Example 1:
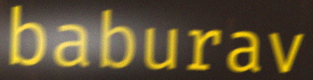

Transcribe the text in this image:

baburav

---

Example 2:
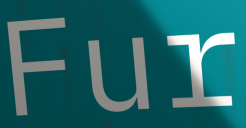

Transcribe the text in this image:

Fur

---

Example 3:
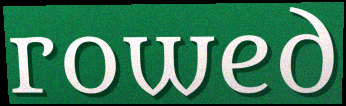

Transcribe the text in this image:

rowed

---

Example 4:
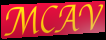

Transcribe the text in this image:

MCAV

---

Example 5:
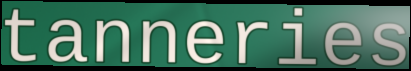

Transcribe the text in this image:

tanneries